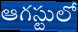
ఆగస్టులో